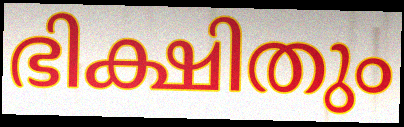
ഭിക്ഷിതും